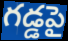
గడ్డపై